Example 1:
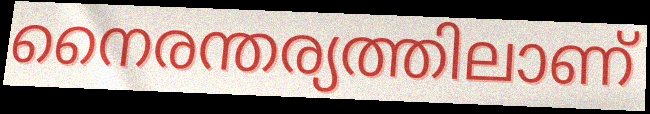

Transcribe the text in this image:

നൈരന്തര്യത്തിലാണ്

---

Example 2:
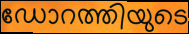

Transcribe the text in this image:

ഡോറത്തിയുടെ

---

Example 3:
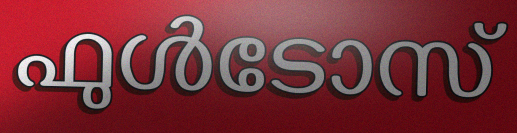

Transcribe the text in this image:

ഫുൾടോസ്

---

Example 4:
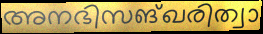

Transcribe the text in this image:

അനഭിസങ്ഖരിത്വാ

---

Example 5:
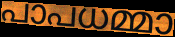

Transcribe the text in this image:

പാപധമ്മാ